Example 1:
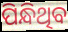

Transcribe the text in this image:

ପିନ୍ଧିଥିବ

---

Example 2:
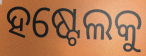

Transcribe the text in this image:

ହଷ୍ଟେଲକୁ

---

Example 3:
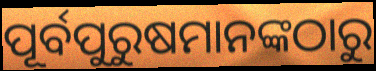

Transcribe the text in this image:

ପୂର୍ବପୁରୁଷମାନଙ୍କଠାରୁ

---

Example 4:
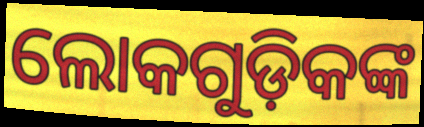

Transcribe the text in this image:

ଲୋକଗୁଡ଼ିକଙ୍କ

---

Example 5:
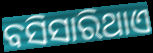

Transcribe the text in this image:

ବସିସାରିଥାଏ